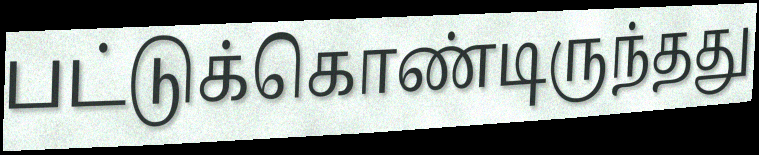
பட்டுக்கொண்டிருந்தது